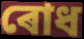
ৰোধ